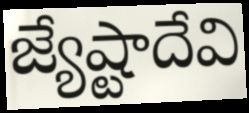
జ్యేష్టాదేవి